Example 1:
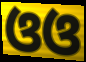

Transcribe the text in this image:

ଓଓ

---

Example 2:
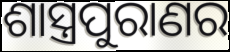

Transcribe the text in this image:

ଶାସ୍ତ୍ରପୁରାଣର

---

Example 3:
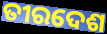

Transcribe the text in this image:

ତୀରଦେଶ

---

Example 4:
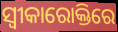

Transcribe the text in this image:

ସ୍ଵୀକାରୋକ୍ତିରେ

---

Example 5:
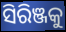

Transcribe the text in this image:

ସିରିଞ୍ଜକୁ